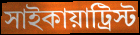
সাইকায়াট্রিস্ট